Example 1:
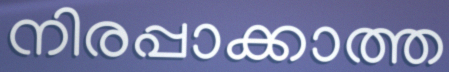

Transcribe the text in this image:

നിരപ്പാക്കാത്ത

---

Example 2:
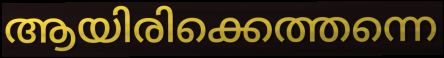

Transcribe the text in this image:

ആയിരിക്കെത്തന്നെ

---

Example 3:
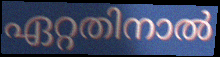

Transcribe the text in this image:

ഏറ്റതിനാൽ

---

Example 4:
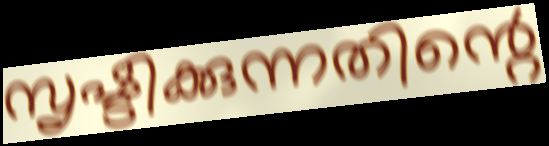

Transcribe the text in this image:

സൃഷ്ടിക്കുന്നതിന്റെ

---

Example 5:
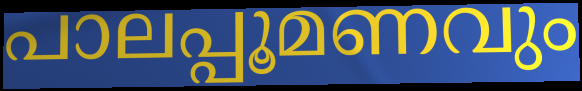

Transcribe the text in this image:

പാലപ്പൂമണവും